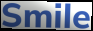
Smile